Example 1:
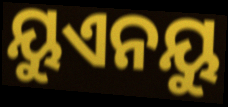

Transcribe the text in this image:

ୟୁଏନୟୁ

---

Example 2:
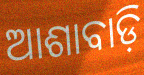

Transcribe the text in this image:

ଆଶାବାଡ଼ି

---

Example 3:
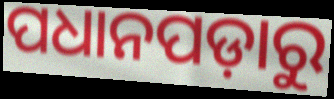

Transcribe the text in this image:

ପଧାନପଡ଼ାରୁ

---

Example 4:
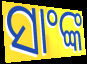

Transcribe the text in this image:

ସାଂଙ୍କ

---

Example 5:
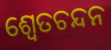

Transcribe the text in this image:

ଶ୍ୱେତଚନ୍ଦନ